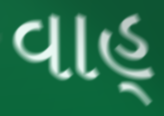
વાહ્